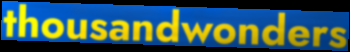
thousandwonders